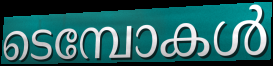
ടെമ്പോകൾ